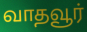
வாதவூர்